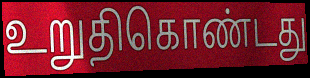
உறுதிகொண்டது